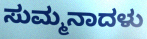
ಸುಮ್ಮನಾದಳು